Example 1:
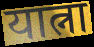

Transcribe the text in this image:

यात्ना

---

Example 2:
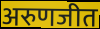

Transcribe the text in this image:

अरुणजीत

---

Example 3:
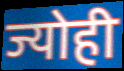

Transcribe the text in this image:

ज्योही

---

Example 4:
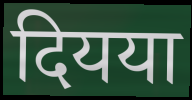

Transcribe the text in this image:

दियया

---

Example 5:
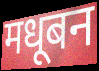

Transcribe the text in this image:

मधूबन